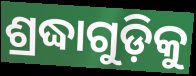
ଶ୍ରଦ୍ଧାଗୁଡ଼ିକୁ